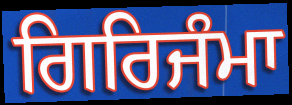
ਗਿਰਿਜੰਮਾ